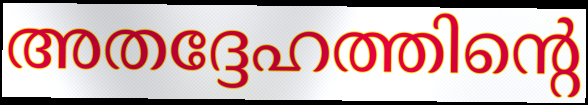
അതദ്ദേഹത്തിന്റെ